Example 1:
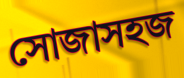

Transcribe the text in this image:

সোজাসহজ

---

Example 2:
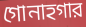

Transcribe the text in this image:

গোনাহগার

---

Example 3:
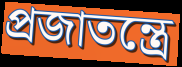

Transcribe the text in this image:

প্রজাতন্ত্রে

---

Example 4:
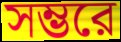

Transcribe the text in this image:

সম্ভরে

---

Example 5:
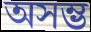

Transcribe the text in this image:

অসম্ভ